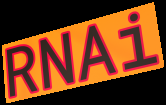
RNAi